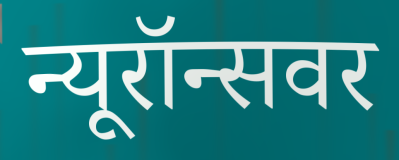
न्यूरॉन्सवर